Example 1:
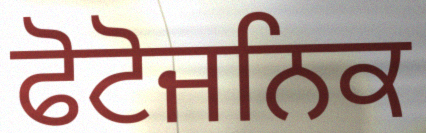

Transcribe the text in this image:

ਫੋਟੋਜਨਿਕ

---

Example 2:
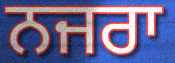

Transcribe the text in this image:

ਨਜਰਾ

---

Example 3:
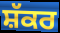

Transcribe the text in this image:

ਸ਼ੱਕਰ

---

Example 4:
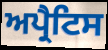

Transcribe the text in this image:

ਅਪ੍ਰੈਟਿਸ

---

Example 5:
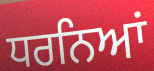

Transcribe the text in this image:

ਧਰਨਿਆਂ